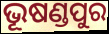
ଭୂଷଣ୍ଡପୁର